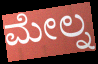
ಮೇಲ್ನ